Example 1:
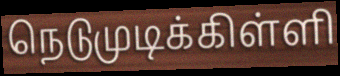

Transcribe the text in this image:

நெடுமுடிக்கிள்ளி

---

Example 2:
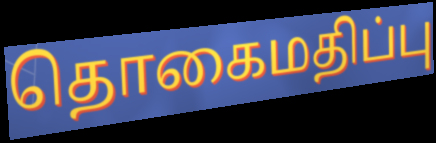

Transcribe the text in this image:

தொகைமதிப்பு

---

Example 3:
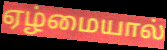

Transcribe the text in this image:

ஏழ்மையால்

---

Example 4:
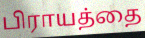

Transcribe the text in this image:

பிராயத்தை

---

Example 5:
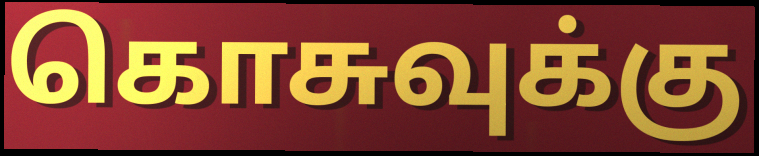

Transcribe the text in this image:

கொசுவுக்கு